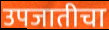
उपजातीचा